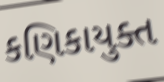
કણિકાયુક્ત